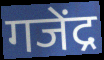
गजेंद्र